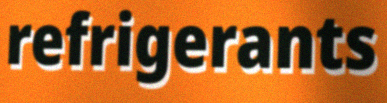
refrigerants